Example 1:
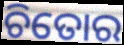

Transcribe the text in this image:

ଚିତୋର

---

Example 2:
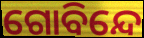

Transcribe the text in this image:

ଗୋବିନ୍ଦେ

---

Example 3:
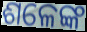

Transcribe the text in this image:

ଶଳେଙ୍କ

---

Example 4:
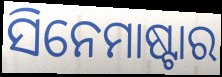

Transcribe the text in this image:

ସିନେମାଷ୍ଟାର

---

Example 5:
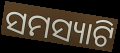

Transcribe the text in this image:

ସମସ୍ୟାଟି